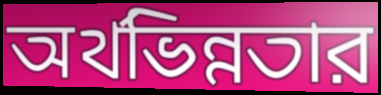
অর্থভিন্নতার